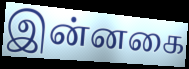
இன்னகை